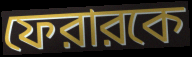
ফেরারকে